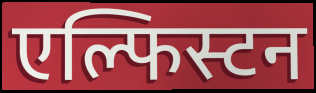
एल्फिस्टन